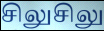
சிலுசிலு